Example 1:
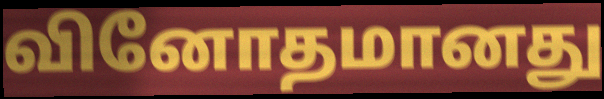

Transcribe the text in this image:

வினோதமானது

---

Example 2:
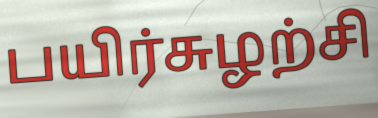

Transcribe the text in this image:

பயிர்சுழற்சி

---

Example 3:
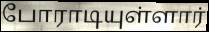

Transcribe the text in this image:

போராடியுள்ளார்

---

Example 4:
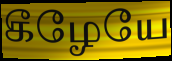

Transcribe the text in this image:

கீழேயே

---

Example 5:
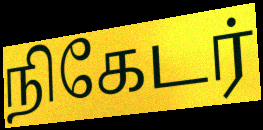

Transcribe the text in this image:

நிகேடர்